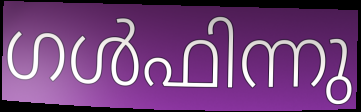
ഗൾഫിന്നു